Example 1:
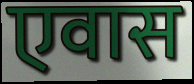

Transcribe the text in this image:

एवास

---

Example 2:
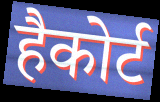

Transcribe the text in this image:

हैकोर्ट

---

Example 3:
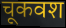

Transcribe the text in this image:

चूकवश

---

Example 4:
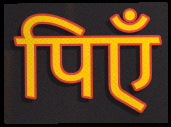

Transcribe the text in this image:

पिएँ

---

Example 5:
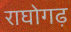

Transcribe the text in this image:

राघोगढ़